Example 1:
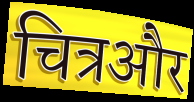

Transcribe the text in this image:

चित्रऔर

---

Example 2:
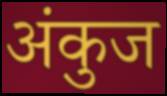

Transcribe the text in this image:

अंकुज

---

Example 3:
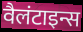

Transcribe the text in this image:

वैलंटाइन्स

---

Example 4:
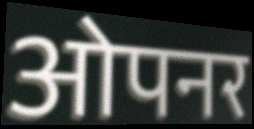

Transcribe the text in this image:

ओपनर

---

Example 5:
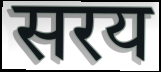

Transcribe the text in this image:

सरय